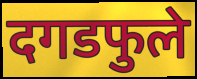
दगडफुले